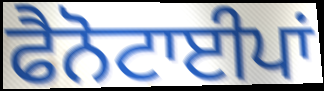
ਫੈਨੋਟਾਈਪਾਂ